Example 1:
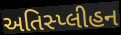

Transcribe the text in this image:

અતિસ્પ્લીહન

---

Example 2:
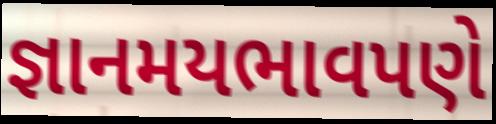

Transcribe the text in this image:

જ્ઞાનમયભાવપણે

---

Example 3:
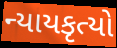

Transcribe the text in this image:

ન્યાયકૃત્યો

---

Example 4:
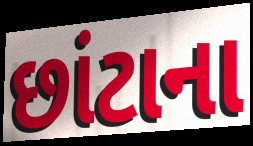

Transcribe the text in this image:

છાંટાના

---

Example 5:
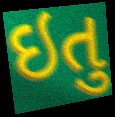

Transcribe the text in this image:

ઇતુ